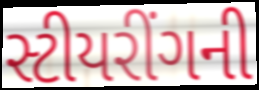
સ્ટીયરીંગની